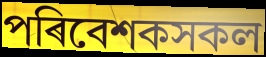
পৰিবেশকসকল